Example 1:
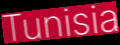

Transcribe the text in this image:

Tunisia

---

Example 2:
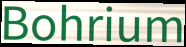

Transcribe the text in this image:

Bohrium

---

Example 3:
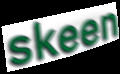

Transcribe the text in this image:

skeen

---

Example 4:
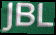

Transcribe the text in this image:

JBL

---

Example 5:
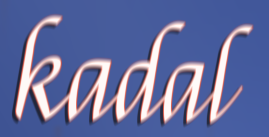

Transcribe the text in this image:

kadal